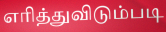
எரித்துவிடும்படி